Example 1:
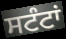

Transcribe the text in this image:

ਸਟੰਟਾਂ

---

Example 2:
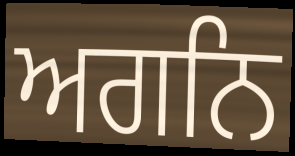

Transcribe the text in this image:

ਅਗਨਿ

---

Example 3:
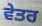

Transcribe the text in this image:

ਵੇਤਰ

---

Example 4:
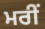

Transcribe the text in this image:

ਮਰੀਂ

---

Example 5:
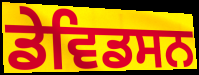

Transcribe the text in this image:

ਡੇਵਿਡਸਨ